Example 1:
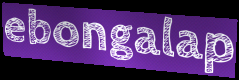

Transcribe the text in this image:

ebongalap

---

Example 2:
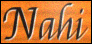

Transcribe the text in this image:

Nahi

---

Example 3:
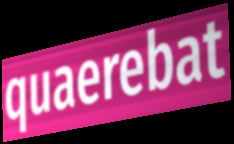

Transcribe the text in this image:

quaerebat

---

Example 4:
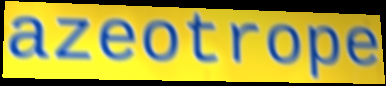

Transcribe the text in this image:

azeotrope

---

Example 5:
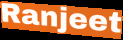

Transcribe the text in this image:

Ranjeet